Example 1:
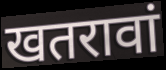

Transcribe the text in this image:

खतरावां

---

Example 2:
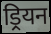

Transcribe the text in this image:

ड्रियन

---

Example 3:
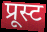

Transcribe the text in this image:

प्रूस्ट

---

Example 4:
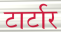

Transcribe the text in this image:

टार्टार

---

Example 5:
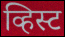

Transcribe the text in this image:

व्हिस्ट